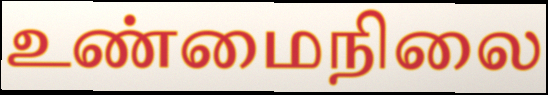
உண்மைநிலை